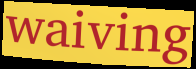
waiving